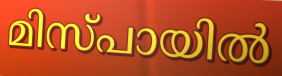
മിസ്പായിൽ